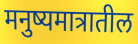
मनुष्यमात्रातील